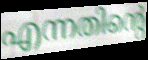
എന്നതിന്റെ